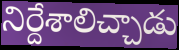
నిర్దేశాలిచ్చాడు